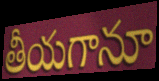
తీయగానూ